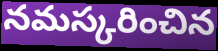
నమస్కరించిన